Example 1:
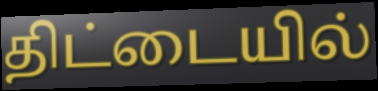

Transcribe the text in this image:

திட்டையில்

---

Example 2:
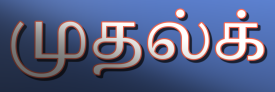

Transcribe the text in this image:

முதல்க்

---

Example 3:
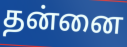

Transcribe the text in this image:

தன்னை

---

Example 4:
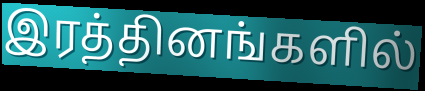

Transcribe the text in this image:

இரத்தினங்களில்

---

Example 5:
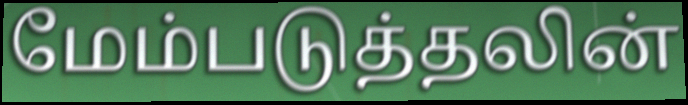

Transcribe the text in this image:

மேம்படுத்தலின்